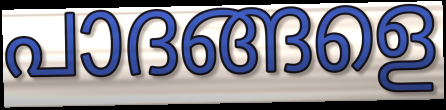
പാദങ്ങളെ